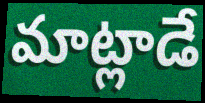
మాట్లాడే